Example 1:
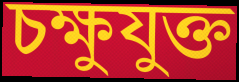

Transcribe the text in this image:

চক্ষুযুক্ত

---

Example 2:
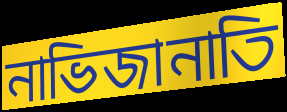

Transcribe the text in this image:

নাভিজানাতি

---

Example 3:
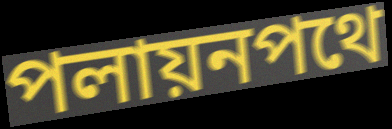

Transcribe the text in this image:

পলায়নপথে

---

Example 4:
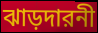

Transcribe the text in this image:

ঝাড়দারনী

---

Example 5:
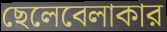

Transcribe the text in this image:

ছেলেবেলাকার